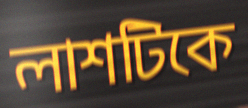
লাশটিকে